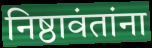
निष्ठावंतांना